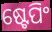
ଷ୍ଟେପିଂ